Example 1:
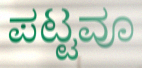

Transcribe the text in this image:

ಪಟ್ಟವೂ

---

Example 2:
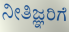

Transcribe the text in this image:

ನೀತಿಜ್ಞರಿಗೆ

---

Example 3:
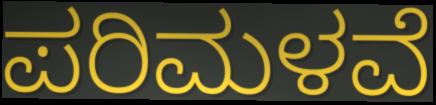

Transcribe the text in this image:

ಪರಿಮಳವೆ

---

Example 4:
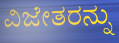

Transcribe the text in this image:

ವಿಜೇತರನ್ನು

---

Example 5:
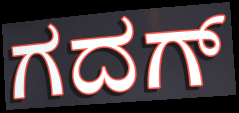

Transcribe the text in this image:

ಗದಗ್